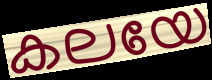
കലയേ